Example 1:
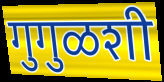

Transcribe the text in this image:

गुगुळशी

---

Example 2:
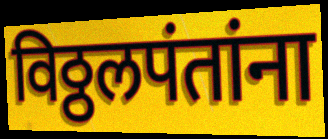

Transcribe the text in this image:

विठ्ठलपंतांना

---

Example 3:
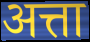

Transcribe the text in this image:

अत्ता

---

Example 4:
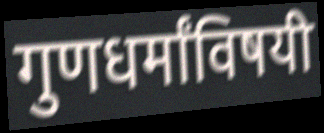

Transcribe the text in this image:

गुणधर्मांविषयी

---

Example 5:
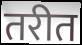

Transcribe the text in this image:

तरीत